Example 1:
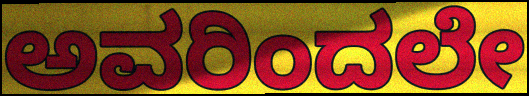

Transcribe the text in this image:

ಅವರಿಂದಲೇ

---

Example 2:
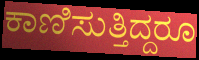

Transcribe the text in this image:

ಕಾಣಿಸುತ್ತಿದ್ದರೂ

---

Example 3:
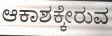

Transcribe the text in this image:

ಆಕಾಶಕ್ಕೇರುವ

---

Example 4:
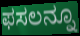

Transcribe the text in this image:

ಫಸಲನ್ನೂ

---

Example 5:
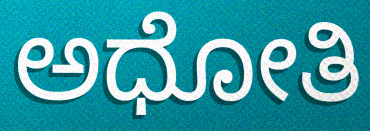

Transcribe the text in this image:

ಅಧೋತಿ